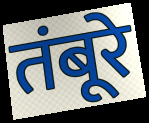
तंबूरे